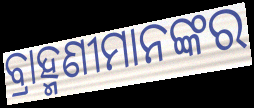
ବ୍ରାହ୍ମଣୀମାନଙ୍କର